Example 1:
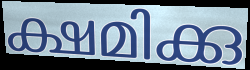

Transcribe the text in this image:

ക്ഷമിക്കു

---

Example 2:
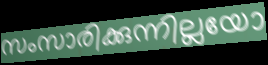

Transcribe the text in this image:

സംസാരിക്കുന്നില്ലയോ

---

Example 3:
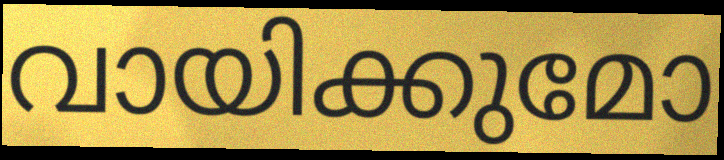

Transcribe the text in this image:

വായിക്കുമോ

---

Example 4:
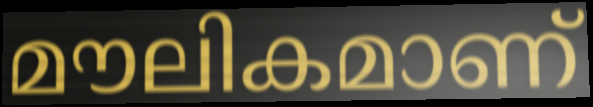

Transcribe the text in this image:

മൗലികമാണ്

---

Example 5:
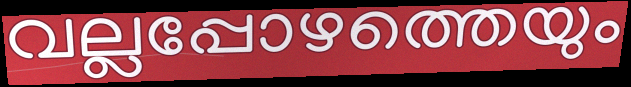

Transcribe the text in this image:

വല്ലപ്പോഴത്തെയും